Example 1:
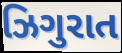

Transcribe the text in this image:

ઝિગુરાત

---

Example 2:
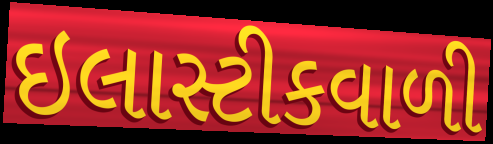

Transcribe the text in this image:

ઇલાસ્ટીકવાળી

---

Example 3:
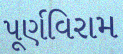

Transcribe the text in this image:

પૂર્ણવિરામ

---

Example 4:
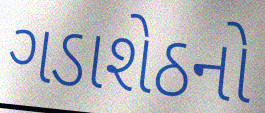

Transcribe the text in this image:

ગડાશેઠનો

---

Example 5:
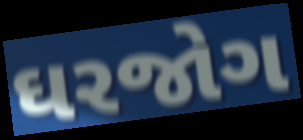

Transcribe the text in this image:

ઘરજોગ